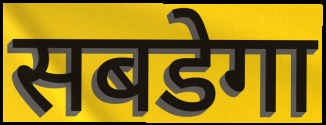
सबडेगा